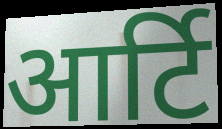
आर्टि